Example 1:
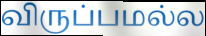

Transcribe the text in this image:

விருப்பமல்ல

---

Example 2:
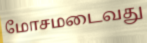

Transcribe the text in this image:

மோசமடைவது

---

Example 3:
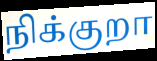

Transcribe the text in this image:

நிக்குறா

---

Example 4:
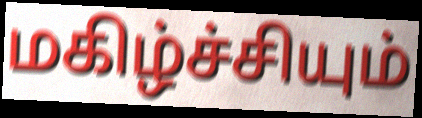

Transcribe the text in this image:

மகிழ்ச்சியும்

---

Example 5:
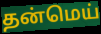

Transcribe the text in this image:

தன்மெய்